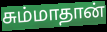
சும்மாதான்